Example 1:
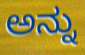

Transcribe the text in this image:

ಅನ್ನು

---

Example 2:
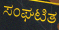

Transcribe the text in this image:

ಸಂಘಟಿತ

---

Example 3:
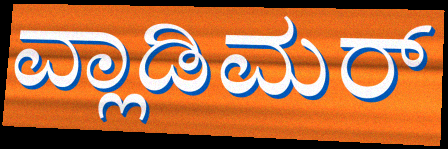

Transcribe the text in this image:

ವ್ಲಾಡಿಮರ್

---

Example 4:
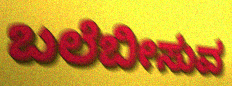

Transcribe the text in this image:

ಬಲೆಬೀಸುವ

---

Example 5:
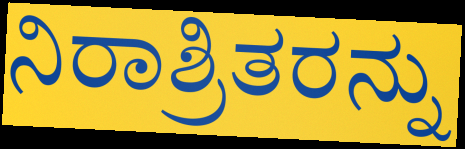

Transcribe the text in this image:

ನಿರಾಶ್ರಿತರನ್ನು